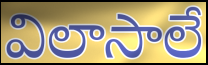
విలాసాలే